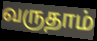
வருதாம்